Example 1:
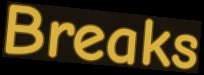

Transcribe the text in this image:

Breaks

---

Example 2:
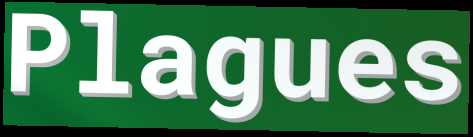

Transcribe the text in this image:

Plagues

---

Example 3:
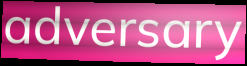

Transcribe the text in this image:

adversary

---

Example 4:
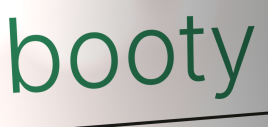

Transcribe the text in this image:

booty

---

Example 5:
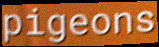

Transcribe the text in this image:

pigeons